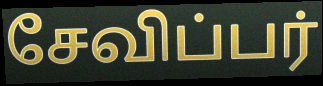
சேவிப்பர்